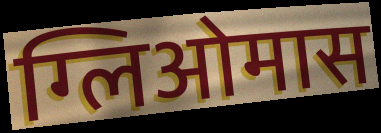
ग्लिओमास